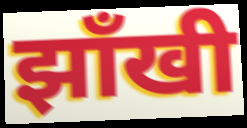
झाँखी